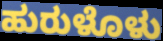
ಹುರುಳೊಳು